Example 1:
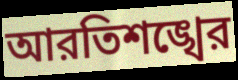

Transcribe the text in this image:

আরতিশঙ্খের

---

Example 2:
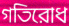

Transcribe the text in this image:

গতিরোধ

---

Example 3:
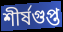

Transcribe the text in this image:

শীর্ষগুপ্ত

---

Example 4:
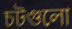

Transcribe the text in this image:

চটগুলো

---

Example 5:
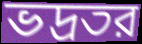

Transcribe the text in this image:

ভদ্রতর